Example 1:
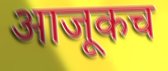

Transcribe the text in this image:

आजूकच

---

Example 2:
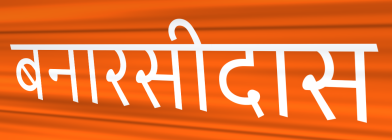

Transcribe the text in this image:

बनारसीदास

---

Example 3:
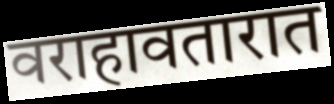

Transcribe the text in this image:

वराहावतारात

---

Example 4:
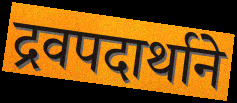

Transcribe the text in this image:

द्रवपदार्थाने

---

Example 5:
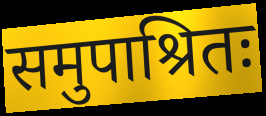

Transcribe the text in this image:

समुपाश्रितः